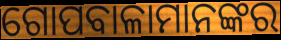
ଗୋପବାଳାମାନଙ୍କର